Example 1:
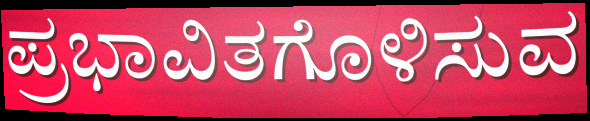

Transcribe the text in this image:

ಪ್ರಭಾವಿತಗೊಳಿಸುವ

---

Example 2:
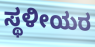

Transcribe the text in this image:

ಸ್ಥಳೀಯರ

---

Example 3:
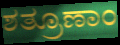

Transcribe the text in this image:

ಶತ್ರೂಣಾಂ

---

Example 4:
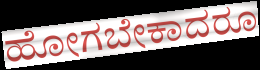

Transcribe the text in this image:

ಹೋಗಬೇಕಾದರೂ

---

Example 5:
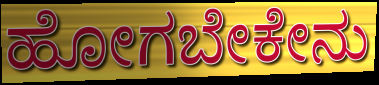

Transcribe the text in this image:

ಹೋಗಬೇಕೇನು